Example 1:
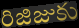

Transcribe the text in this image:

రిజిజుకు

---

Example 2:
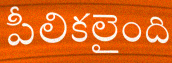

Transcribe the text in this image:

పీలికలైంది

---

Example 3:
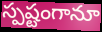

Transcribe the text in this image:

స్పష్టంగానూ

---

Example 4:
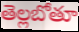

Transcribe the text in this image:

తెల్లబోతూ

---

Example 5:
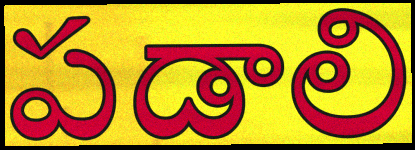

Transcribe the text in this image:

పడాలి